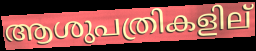
ആശുപത്രികളില്